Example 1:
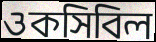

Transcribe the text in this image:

ওকসিবিল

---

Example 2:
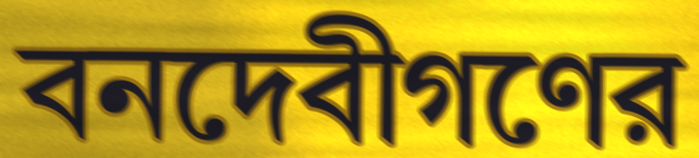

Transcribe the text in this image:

বনদেবীগণের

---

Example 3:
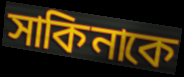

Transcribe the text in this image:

সাকিনাকে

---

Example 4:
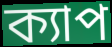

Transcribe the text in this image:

ক্যাপ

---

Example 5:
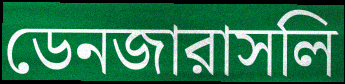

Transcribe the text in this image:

ডেনজারাসলি